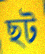
ছট